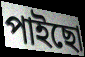
পাইছো